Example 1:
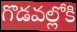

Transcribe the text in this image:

గొడవల్లోకి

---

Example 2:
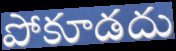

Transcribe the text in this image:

పోకూడదు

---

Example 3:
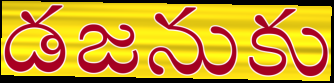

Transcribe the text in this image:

డజనుకు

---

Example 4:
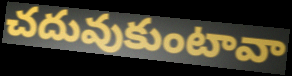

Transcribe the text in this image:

చదువుకుంటావా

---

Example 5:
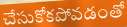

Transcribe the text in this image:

చేసుకోకపోవడంతో